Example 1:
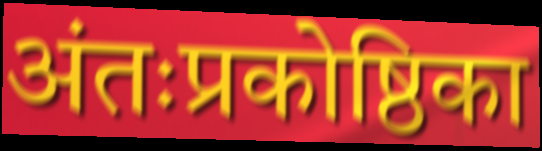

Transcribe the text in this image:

अंतःप्रकोष्ठिका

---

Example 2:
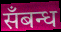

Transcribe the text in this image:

सँबन्ध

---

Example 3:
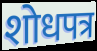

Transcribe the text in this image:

शोधपत्र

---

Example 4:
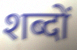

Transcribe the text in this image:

शब्‍दों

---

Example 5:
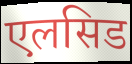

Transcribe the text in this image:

एलसिड